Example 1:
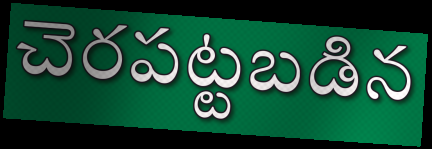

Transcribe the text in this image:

చెరపట్టబడిన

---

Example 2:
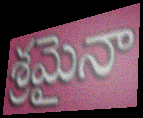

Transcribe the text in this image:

శ్రమైనా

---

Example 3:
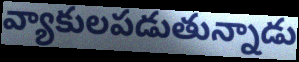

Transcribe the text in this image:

వ్యాకులపడుతున్నాడు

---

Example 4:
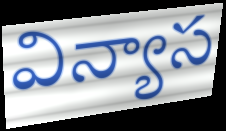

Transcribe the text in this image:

విన్యాస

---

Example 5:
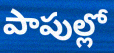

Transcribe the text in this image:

పాపుల్లో